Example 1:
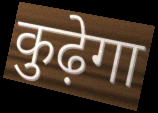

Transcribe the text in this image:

कुढ़ेगा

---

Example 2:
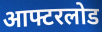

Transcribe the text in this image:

आफ्टरलोड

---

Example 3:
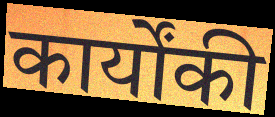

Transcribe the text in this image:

कार्योंकी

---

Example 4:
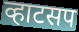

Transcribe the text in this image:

व्हाटसप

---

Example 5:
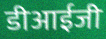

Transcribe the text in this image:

डीआईजी